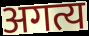
अगत्य